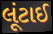
લૂંટાઈ